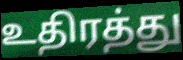
உதிரத்து